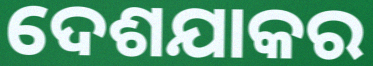
ଦେଶଯାକର